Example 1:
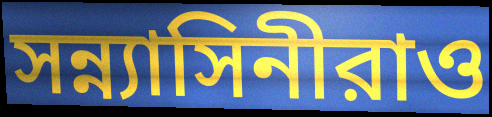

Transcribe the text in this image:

সন্ন্যাসিনীরাও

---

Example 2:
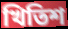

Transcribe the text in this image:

খিতিশ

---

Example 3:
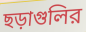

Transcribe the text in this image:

ছড়াগুলির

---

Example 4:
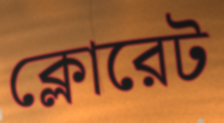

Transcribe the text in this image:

ক্লোরেট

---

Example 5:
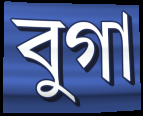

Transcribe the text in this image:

বুগা